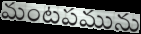
మంటపమును